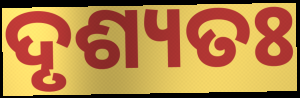
ଦୃଶ୍ୟତଃ